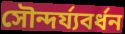
সৌন্দৰ্য্যবৰ্ধন